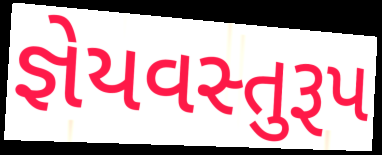
જ્ઞેયવસ્તુરૂપ